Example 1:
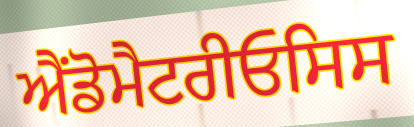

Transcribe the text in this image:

ਐਂਡੋਮੈਟਰੀਓਸਿਸ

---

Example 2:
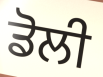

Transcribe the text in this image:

ਡੋਲੀ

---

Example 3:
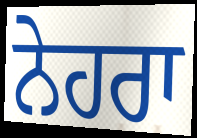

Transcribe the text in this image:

ਨੇਹਰਾ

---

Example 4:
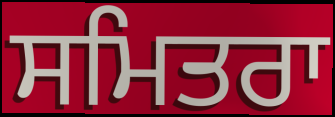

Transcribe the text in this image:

ਸਮਿਤਰਾ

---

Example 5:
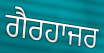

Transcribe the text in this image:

ਗੈਰਹਾਜਰ